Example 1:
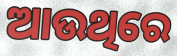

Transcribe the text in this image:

ଆଉଥିରେ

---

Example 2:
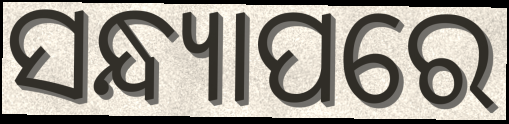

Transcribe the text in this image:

ସନ୍ଧ୍ୟାପରେ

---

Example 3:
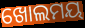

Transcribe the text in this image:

ଖୋଲମୟ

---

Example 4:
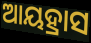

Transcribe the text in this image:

ଆୟହ୍ରାସ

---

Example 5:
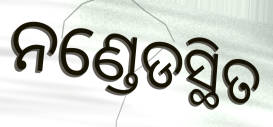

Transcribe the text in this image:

ନଣ୍ଡେଡସ୍ଥିତ